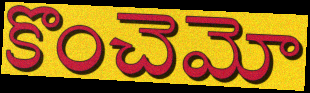
కొంచెమో